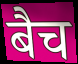
बैच